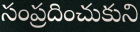
సంప్రదించుకుని